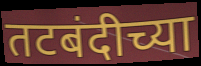
तटबंदीच्या